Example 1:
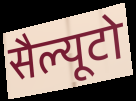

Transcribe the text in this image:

सैल्यूटो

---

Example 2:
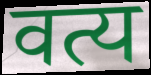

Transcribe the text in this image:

वत्य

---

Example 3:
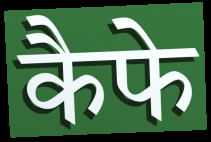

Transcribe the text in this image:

कैफे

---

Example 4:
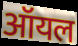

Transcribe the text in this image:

ऑयल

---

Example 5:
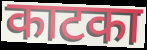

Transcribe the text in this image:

काटका